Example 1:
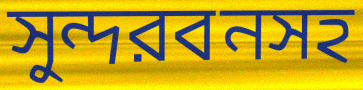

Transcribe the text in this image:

সুন্দরবনসহ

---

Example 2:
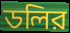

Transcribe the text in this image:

ডলির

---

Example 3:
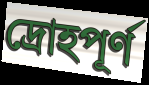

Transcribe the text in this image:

দ্রোহপূর্ণ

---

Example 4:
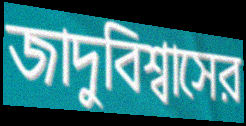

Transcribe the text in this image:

জাদুবিশ্বাসের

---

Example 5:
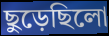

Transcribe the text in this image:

ছুড়েছিলো